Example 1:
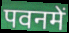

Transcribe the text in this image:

पवनमें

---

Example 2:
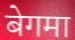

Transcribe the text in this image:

बेगमा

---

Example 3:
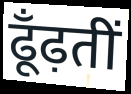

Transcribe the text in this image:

ढूँढ़तीं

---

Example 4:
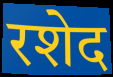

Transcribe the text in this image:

रशेद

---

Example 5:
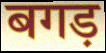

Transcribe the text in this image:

बगड़